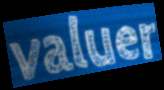
valuer